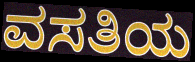
ವಸತಿಯ